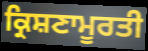
ਕ੍ਰਿਸ਼ਣਾਮੂਰਤੀ